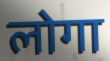
लोगा